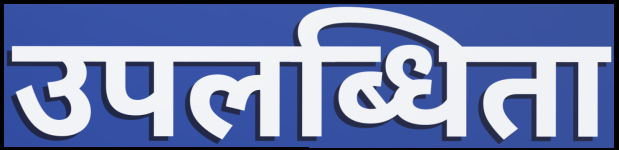
उपलब्धिता